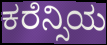
ಕರೆನ್ಸಿಯ